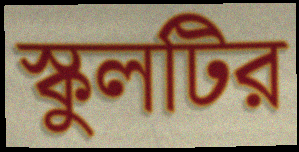
স্কুলটির